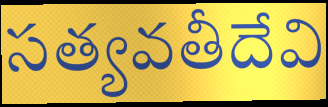
సత్యవతీదేవి